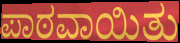
ಪಾಠವಾಯಿತು